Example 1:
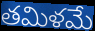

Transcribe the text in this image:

తమిళమే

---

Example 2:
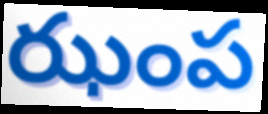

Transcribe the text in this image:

ఝంప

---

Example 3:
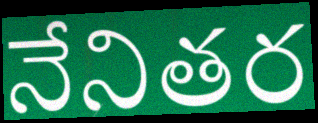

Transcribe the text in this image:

నేనితర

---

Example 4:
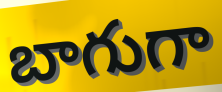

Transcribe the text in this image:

బాగుగా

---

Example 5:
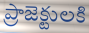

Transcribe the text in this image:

ప్రాజెక్టులకి